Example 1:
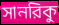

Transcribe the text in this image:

সানরিকু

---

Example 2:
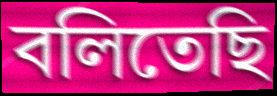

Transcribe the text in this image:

বলিতেছি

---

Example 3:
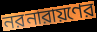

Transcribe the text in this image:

নরনারায়ণের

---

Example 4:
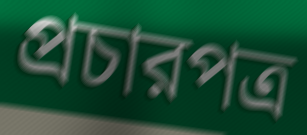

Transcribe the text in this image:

প্রচারপত্র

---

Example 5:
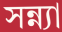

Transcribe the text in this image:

সন্ন্যা